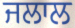
ਜਲਾਲ